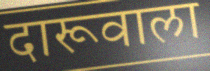
दारूवाला